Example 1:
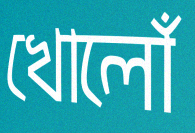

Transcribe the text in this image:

খোলোঁ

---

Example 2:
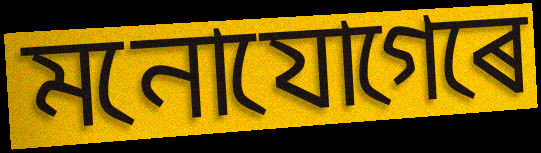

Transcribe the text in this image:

মনোযোগেৰে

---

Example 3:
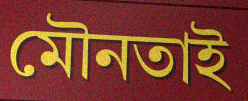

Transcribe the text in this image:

মৌনতাই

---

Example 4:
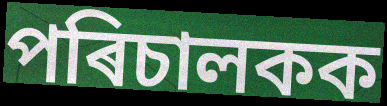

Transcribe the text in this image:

পৰিচালকক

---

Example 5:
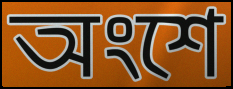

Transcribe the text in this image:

অংশে